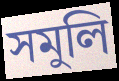
সমুলি